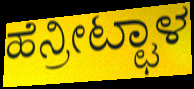
ಹೆನ್ರೀಟ್ಟಾಳ